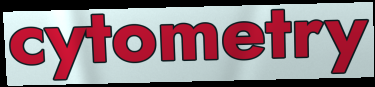
cytometry